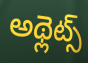
అథ్లెట్స్